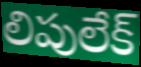
లిపులేక్